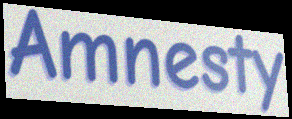
Amnesty